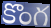
కొంగ